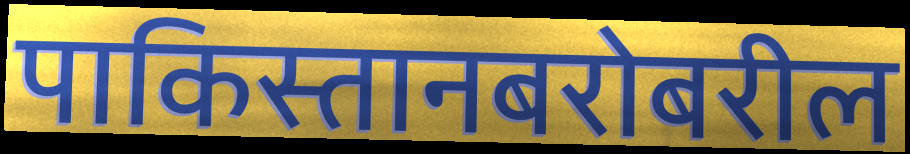
पाकिस्तानबरोबरील